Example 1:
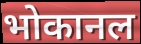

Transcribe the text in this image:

भोकानल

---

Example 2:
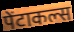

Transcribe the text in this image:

पेंटाकल्स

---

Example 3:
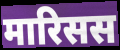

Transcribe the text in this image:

मारिसस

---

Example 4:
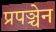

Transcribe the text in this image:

प्रपञ्चेन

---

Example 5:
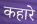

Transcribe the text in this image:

कहारे